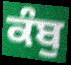
ਕੰਬੁ